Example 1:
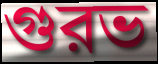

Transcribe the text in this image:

গুরভ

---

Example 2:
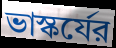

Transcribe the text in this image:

ভাস্কর্যের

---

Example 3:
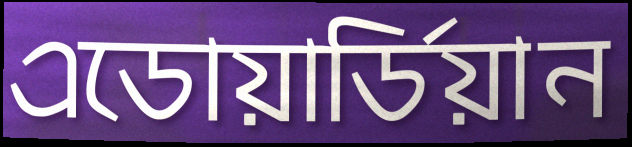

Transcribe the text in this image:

এডোয়ার্ডিয়ান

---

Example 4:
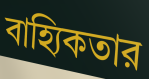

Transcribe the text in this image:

বাহ্যিকতার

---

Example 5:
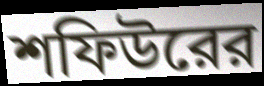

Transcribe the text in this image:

শফিউরের